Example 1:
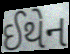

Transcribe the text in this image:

ઈથેન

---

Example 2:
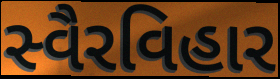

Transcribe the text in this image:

સ્વૈરવિહાર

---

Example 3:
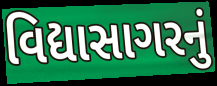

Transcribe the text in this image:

વિદ્યાસાગરનું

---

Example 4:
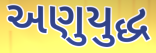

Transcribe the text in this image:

અણુયુદ્ધ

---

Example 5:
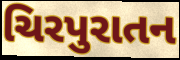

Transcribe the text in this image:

ચિરપુરાતન